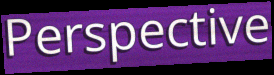
Perspective